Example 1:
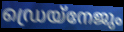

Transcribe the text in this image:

ഡ്രെയ്നേജും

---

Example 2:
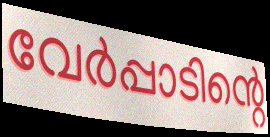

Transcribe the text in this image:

വേർപ്പാടിന്റെ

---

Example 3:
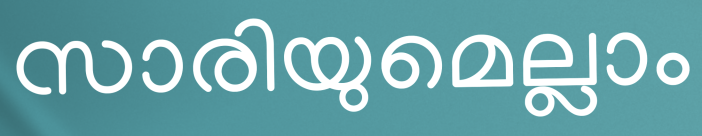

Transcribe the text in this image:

സാരിയുമെല്ലാം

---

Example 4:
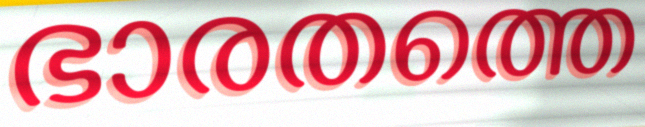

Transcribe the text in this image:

ഭാരതത്തെ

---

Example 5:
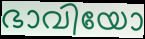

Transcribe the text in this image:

ഭാവിയോ